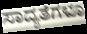
ಸಾದ್ಯತೆಗಳೂ